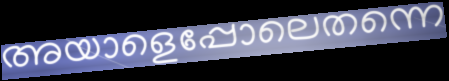
അയാളെപ്പോലെതന്നെ